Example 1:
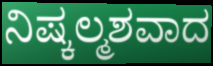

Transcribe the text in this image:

ನಿಷ್ಕಲ್ಮಶವಾದ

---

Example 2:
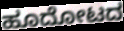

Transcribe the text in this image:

ಹೂದೋಟದ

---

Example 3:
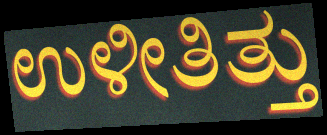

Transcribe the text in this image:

ಉಳೀತಿತ್ತು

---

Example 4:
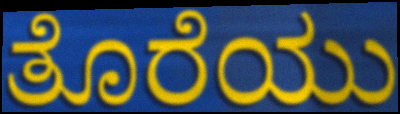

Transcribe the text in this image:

ತೊರೆಯು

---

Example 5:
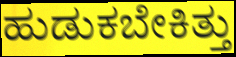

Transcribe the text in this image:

ಹುಡುಕಬೇಕಿತ್ತು